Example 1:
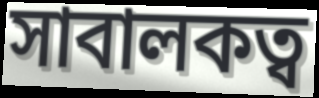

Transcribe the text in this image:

সাবালকত্ব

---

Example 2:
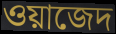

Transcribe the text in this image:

ওয়াজেদ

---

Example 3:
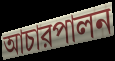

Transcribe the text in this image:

আচারপালন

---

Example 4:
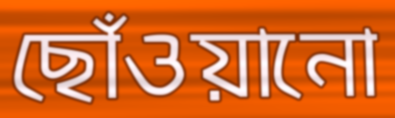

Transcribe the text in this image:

ছোঁওয়ানো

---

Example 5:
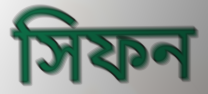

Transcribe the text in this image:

সিফন